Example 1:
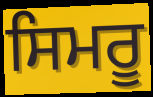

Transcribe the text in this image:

ਸਿਮਰੂ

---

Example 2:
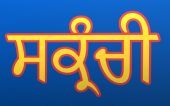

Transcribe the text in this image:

ਸਕ੍ਰੰਚੀ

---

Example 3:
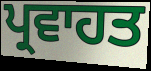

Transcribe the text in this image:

ਪ੍ਰਵਾਹਤ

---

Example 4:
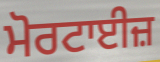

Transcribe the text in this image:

ਮੋਰਟਾਈਜ਼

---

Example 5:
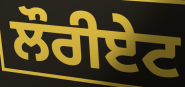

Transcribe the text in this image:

ਲੌਰੀਏਟ